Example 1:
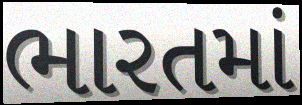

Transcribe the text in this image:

ભારતમાં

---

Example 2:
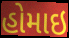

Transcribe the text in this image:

હોમાઇ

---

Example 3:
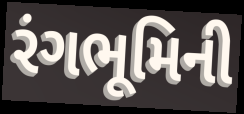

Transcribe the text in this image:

રંગભૂમિની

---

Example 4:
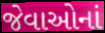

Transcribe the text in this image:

જેવાઓનાં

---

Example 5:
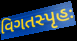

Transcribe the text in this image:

વિગતસ્પૃહઃ